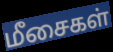
மீசைகள்